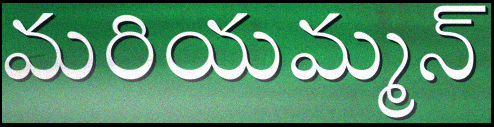
మరియమ్మన్